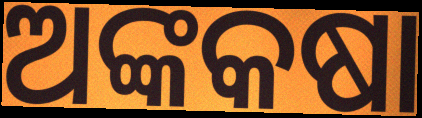
ଅଙ୍କକଷା